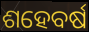
ଶହେବର୍ଷ